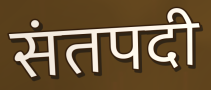
संतपदी